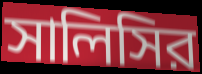
সালিসির